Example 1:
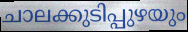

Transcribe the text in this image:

ചാലക്കുടിപ്പുഴയും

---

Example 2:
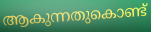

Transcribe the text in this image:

ആകുന്നതുകൊണ്ട്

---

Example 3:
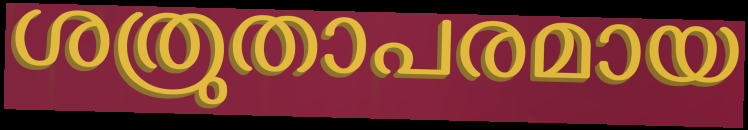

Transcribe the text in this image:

ശത്രുതാപരമായ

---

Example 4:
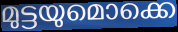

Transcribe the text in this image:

മുട്ടയുമൊക്കെ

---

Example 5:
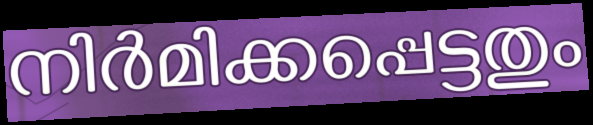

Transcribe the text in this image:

നിർമിക്കപ്പെട്ടതും